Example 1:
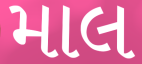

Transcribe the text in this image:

માલ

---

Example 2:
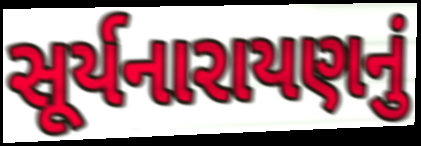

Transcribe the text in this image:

સૂર્યનારાયણનું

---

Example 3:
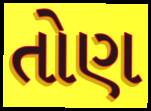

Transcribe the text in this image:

તોણ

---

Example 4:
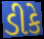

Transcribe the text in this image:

ડીકે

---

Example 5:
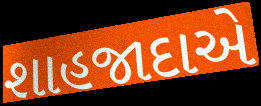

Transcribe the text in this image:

શાહજાદાએ